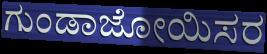
ಗುಂಡಾಜೋಯಿಸರ